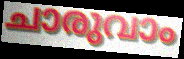
ചാരുവാം